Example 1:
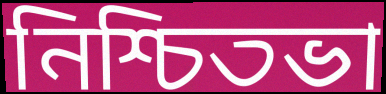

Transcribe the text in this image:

নিশ্চিতভা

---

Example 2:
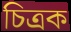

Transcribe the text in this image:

চিত্ৰক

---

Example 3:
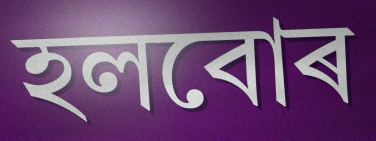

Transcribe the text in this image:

হলবোৰ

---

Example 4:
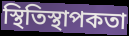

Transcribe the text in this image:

স্থিতিস্থাপকতা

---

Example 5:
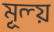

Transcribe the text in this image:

মূল্য়